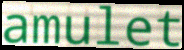
amulet